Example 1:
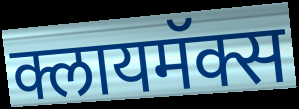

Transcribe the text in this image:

क्लायमॅक्स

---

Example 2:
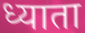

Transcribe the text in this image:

ध्याता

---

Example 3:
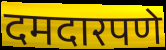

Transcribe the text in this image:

दमदारपणे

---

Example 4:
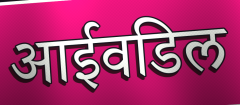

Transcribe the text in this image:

आईवडिल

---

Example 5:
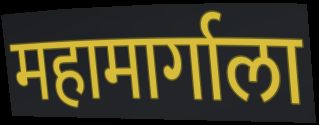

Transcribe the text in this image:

महामार्गाला